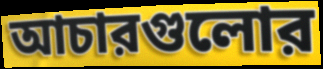
আচারগুলোর